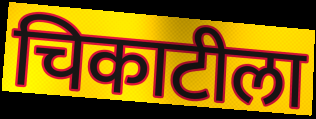
चिकाटीला